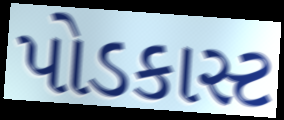
પોડકાસ્ટ